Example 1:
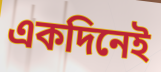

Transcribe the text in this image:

একদিনেই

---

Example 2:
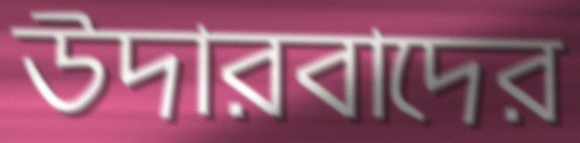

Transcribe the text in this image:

উদারবাদের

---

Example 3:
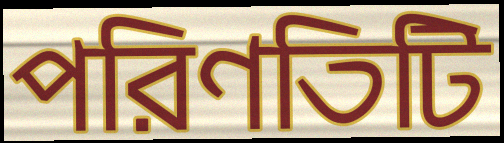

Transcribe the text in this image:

পরিণতিটি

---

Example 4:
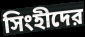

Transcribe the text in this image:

সিংহীদের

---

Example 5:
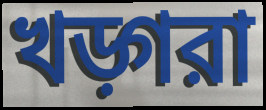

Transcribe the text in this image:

খড়্গরা